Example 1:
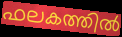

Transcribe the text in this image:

ഫലകത്തിൽ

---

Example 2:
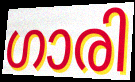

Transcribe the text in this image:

ഗാരി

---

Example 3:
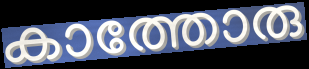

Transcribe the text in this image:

കാത്തോരു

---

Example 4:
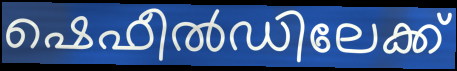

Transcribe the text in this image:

ഷെഫീൽഡിലേക്ക്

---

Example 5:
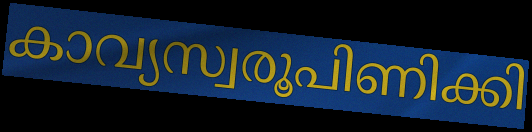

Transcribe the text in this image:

കാവ്യസ്വരൂപിണിക്കി